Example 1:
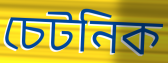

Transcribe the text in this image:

চেটনিক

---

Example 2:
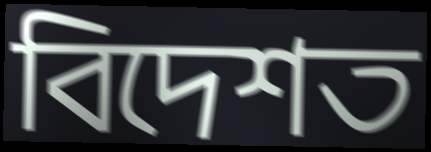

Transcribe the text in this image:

বিদেশত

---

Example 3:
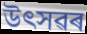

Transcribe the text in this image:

উৎসৱৰ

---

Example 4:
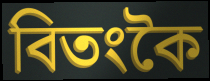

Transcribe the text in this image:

বিতংকৈ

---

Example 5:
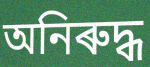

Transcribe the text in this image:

অনিৰুদ্ধ